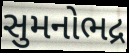
સુમનોભદ્ર